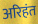
अरिहंत